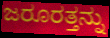
ಜರೂರತ್ತನ್ನು